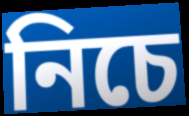
নিচে